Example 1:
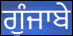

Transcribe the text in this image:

ਗੁੰਜਾਬੇ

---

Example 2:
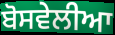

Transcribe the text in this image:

ਬੋਸਵੇਲੀਆ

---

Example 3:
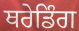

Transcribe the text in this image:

ਥਰੇਡਿੰਗ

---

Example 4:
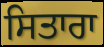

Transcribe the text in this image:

ਸਿਤਾਰਾ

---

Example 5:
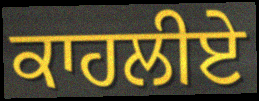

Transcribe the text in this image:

ਕਾਹਲੀਏ